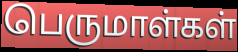
பெருமாள்கள்